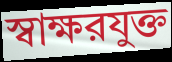
স্বাক্ষরযুক্ত